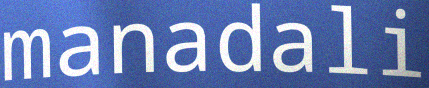
manadali